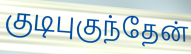
குடிபுகுந்தேன்